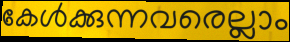
കേൾക്കുന്നവരെല്ലാം